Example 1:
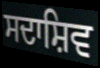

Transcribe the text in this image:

ਸਦਾਸ਼ਿਵ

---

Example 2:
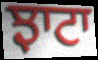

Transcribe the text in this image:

ਝਾਟਾ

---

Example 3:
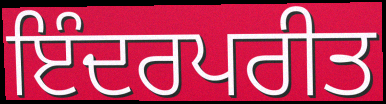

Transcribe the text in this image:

ਇੰਦਰਪਰੀਤ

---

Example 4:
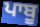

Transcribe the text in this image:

ਪਾਬੂ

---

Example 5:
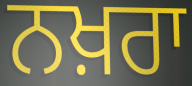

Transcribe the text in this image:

ਨਖ਼ਰਾ